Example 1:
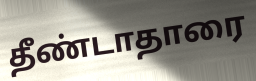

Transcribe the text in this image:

தீண்டாதாரை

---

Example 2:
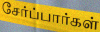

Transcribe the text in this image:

சேர்ப்பார்கள்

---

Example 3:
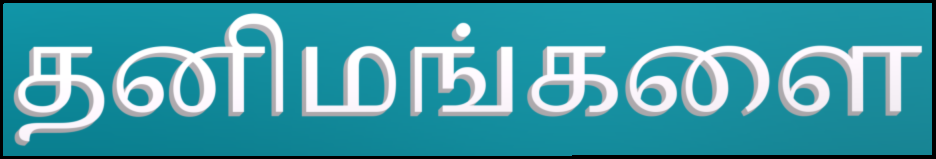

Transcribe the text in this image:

தனிமங்களை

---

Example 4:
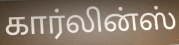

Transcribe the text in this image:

கார்லின்ஸ்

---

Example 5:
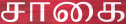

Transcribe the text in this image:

சாகை